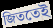
জিততেই